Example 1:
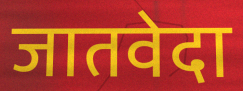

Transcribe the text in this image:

जातवेदा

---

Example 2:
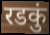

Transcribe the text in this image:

रडकुं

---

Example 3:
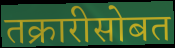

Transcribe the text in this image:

तक्रारीसोबत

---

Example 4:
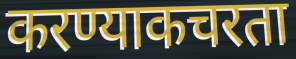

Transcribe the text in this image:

करण्याकचरता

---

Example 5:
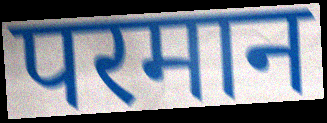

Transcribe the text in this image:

परमान